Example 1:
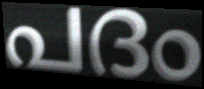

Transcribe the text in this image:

പദം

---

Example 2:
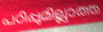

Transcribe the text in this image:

പഠിപ്പുമില്ലാത്ത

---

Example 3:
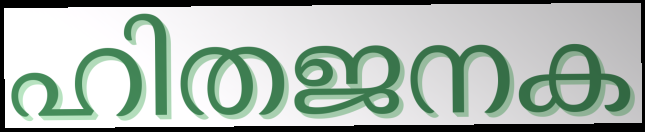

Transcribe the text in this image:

ഹിതജനക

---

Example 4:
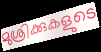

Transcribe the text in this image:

മുശ്രിക്കുകളുടെ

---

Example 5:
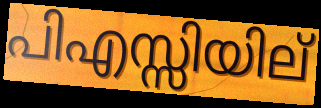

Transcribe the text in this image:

പിഎസ്സിയില്